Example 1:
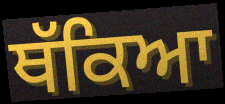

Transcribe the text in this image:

ਥੱਕਿਆ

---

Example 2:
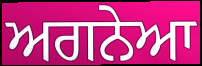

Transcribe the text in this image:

ਅਗਨੇਆ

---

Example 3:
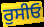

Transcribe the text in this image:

ਰੁਸੀਓ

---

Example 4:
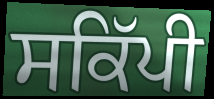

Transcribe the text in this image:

ਸਕਿੱਪੀ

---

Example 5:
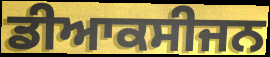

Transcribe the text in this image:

ਡੀਆਕਸੀਜਨ